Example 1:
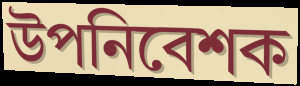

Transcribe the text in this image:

উপনিবেশক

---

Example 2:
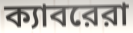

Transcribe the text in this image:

ক্যাবরেরা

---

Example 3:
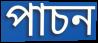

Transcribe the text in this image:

পাচন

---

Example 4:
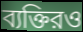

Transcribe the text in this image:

ব্যক্তিরও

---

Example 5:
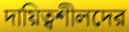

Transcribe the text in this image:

দায়িত্বশীলদের